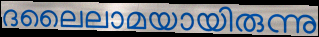
ദലൈലാമയായിരുന്നു